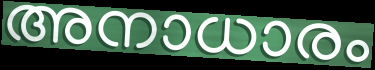
അനാധാരം